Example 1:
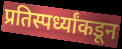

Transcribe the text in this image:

प्रतिस्पर्ध्यांकडून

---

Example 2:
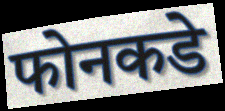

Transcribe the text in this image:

फोनकडे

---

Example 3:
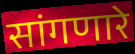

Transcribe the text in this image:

सांगणारे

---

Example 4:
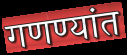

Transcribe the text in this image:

गणण्यांत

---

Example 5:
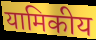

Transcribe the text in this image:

यामिकीय